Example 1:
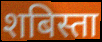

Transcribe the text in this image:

शबिस्ता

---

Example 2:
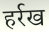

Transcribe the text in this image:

हर्रख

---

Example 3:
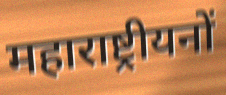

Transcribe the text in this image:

महाराष्ट्रीयनों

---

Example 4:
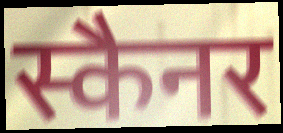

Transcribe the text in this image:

स्कैनर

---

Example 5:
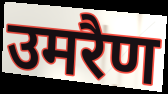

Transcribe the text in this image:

उमरैण